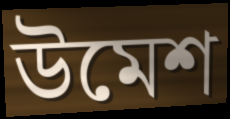
উমেশ